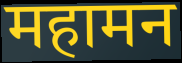
महामन